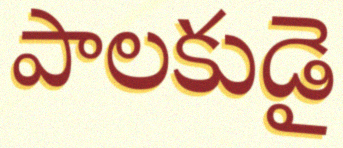
పాలకుడై